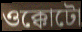
ওক্কোটো